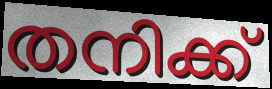
തനിക്ക്